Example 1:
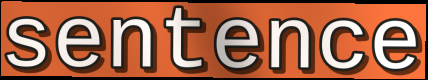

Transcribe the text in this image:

sentence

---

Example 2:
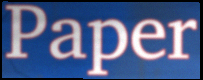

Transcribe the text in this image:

Paper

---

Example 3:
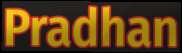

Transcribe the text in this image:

Pradhan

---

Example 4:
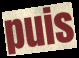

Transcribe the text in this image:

puis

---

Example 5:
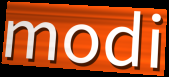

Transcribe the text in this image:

modi